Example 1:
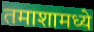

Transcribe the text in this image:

तमाशामध्ये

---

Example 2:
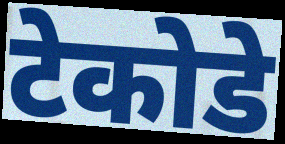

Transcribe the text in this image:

टेकोडे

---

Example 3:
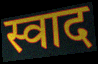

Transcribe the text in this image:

स्वाद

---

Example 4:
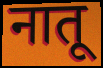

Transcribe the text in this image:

नातू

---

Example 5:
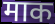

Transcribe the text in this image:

माक